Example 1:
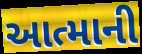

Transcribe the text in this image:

આત્માની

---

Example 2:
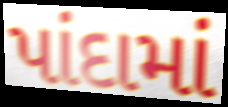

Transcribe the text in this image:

પાંદામાં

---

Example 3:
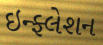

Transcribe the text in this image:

ઇન્ફ્લેશન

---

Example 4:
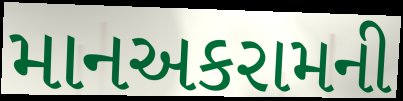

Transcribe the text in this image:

માનઅકરામની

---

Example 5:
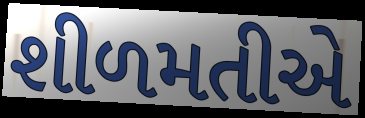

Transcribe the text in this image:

શીળમતીએ